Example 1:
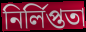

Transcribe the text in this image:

নির্লিপ্ততা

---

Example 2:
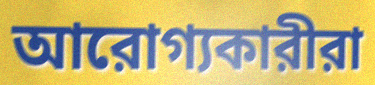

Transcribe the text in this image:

আরোগ্যকারীরা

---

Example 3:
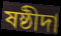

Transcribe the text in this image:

ষষ্ঠীদা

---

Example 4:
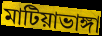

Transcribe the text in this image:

মাটিয়াভাঙ্গা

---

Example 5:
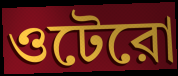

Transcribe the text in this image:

ওটেরো